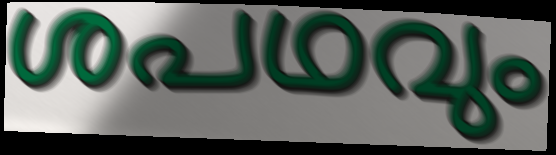
ശപഥവും